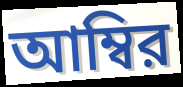
আম্বির